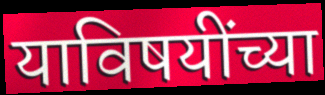
याविषयींच्या